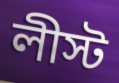
লীস্ট